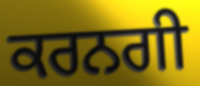
ਕਰਨਗੀ